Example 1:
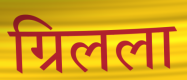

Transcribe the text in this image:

ग्रिलला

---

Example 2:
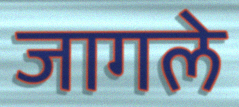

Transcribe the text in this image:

जागले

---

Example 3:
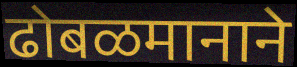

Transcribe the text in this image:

ढोबळमानाने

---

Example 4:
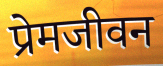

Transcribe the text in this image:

प्रेमजीवन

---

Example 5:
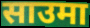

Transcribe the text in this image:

साउमा